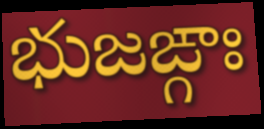
భుజఙ్గాః